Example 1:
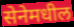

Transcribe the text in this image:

सेनेमधील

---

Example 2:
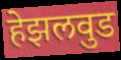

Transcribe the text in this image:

हेझलवुड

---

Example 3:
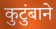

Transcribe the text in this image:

कुटुंबाने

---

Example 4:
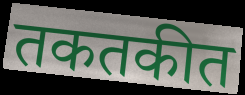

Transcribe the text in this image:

तकतकीत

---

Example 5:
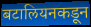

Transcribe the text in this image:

बटालियनकडून